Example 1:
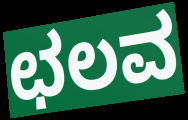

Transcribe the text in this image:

ಛಲವ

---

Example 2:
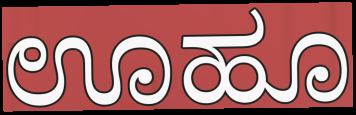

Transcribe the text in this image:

ಊಹೂ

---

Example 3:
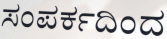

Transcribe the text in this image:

ಸಂಪರ್ಕದಿಂದ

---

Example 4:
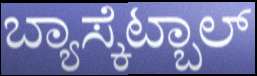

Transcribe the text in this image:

ಬ್ಯಾಸ್ಕೆಟ್ಬಾಲ್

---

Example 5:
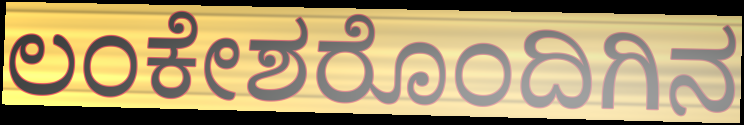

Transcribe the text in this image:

ಲಂಕೇಶರೊಂದಿಗಿನ